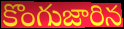
కొంగుజారిన